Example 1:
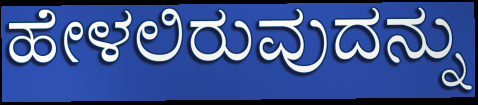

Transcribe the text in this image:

ಹೇಳಲಿರುವುದನ್ನು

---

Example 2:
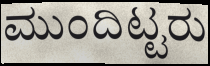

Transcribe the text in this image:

ಮುಂದಿಟ್ಟರು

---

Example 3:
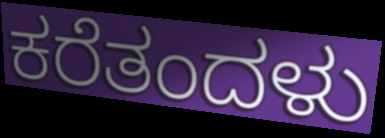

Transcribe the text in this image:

ಕರೆತಂದಳು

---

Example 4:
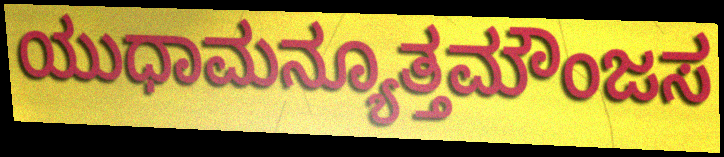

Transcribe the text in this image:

ಯುಧಾಮನ್ಯೂತ್ತಮೌಂಜಸ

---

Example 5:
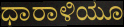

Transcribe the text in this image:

ಧಾರಾಳಿಯೂ